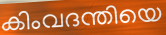
കിംവദന്തിയെ